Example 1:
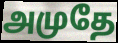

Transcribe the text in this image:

அமுதே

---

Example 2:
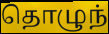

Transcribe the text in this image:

தொழுந்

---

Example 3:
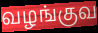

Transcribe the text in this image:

வழங்குவ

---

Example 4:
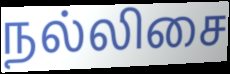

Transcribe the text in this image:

நல்லிசை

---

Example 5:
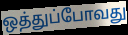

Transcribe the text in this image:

ஒத்துப்போவது